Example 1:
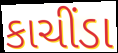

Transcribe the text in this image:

કાચીંડા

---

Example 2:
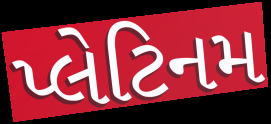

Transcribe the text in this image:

પ્લેટિનમ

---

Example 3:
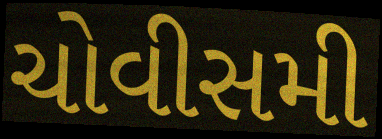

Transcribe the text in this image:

ચોવીસમી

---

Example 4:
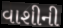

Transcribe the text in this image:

વાશીની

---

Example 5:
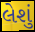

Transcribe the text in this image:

લેશું